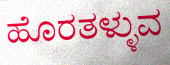
ಹೊರತಳ್ಳುವ